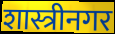
शास्त्रीनगर